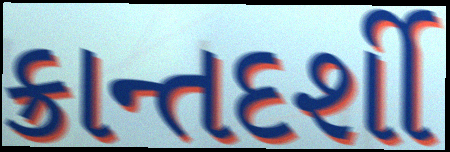
ક્રાન્તદર્શી